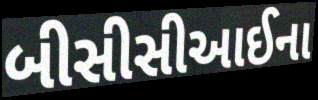
બીસીસીઆઈના